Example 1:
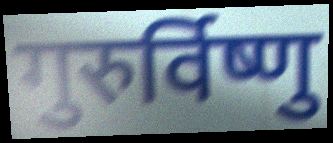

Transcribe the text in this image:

गुरुर्विष्णु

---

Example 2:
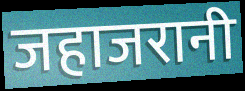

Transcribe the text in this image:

जहाजरानी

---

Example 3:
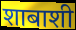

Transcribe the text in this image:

शाबाशी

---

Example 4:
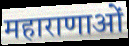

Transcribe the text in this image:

महाराणाओं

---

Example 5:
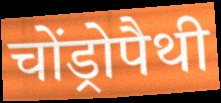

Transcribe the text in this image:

चोंड्रोपैथी